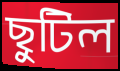
ছুটিল